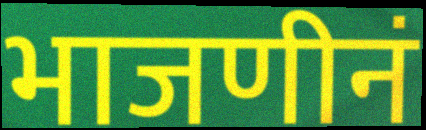
भाजणीनं